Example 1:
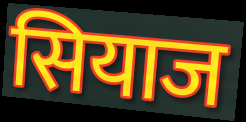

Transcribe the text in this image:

सियाज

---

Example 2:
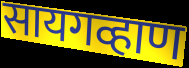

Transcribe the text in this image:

सायगव्हाण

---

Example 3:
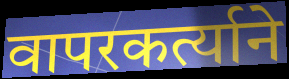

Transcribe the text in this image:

वापरकर्त्याने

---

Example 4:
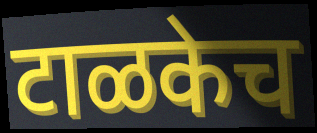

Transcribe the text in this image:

टाळकेच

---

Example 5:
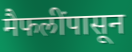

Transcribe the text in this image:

मैफलींपासून